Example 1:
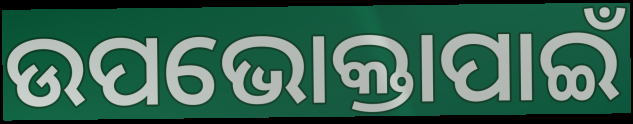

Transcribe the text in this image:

ଉପଭୋକ୍ତାପାଇଁ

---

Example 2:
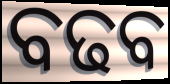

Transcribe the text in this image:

ବଢବ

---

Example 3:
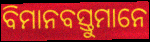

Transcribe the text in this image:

ବିମାନବସ୍ତୁମାନେ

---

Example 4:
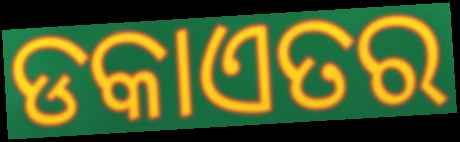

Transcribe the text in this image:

ଡକାଏତର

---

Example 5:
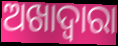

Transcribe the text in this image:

ଅଖାଦ୍ୱାରା